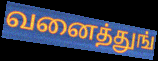
வனைத்துங்